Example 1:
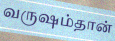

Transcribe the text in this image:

வருஷம்தான்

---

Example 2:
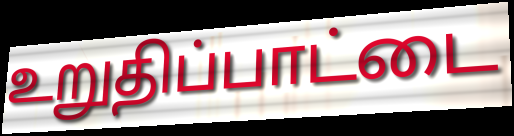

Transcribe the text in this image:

உறுதிப்பாட்டை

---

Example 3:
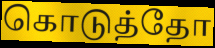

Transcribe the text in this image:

கொடுத்தோ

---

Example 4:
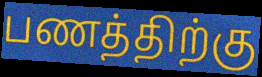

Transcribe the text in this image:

பணத்திற்கு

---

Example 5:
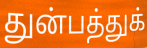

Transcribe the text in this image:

துன்பத்துக்